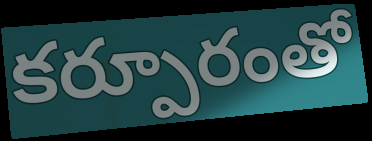
కర్పూరంతో